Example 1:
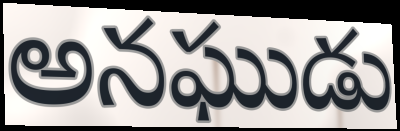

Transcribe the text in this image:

అనఘుడు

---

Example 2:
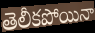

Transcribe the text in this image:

తెలీకపోయినా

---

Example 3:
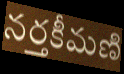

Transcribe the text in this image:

నర్తకీమణి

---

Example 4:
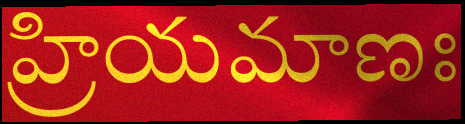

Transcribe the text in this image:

హ్రియమాణః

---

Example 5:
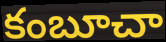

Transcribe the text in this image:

కంబూచా